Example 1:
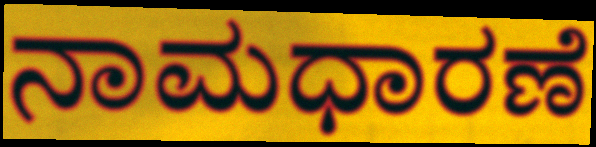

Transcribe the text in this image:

ನಾಮಧಾರಣೆ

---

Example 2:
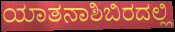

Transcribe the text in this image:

ಯಾತನಾಶಿಬಿರದಲ್ಲಿ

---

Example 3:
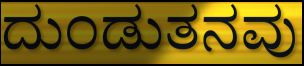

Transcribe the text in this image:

ದುಂಡುತನವು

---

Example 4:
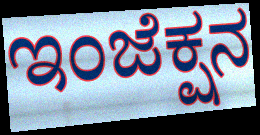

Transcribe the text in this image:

ಇಂಜೆಕ್ಷನ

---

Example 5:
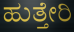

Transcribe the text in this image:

ಹುತ್ತೇರಿ